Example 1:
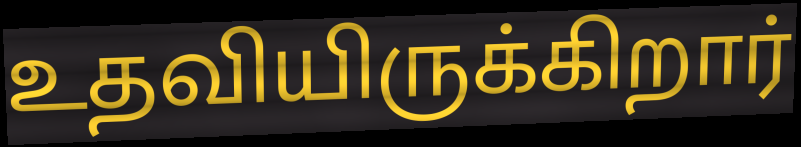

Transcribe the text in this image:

உதவியிருக்கிறார்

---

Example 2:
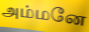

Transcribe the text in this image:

அம்மனே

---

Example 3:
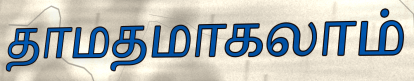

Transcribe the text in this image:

தாமதமாகலாம்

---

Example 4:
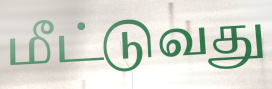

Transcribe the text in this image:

மீட்டுவது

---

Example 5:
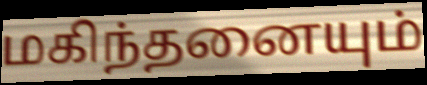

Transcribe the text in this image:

மகிந்தனையும்